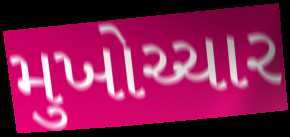
મુખોચ્ચાર